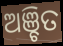
ଅଞ୍ଚିତ